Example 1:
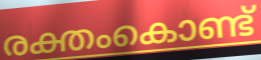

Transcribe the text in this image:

രക്തംകൊണ്ട്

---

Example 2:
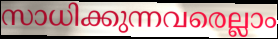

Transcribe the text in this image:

സാധിക്കുന്നവരെല്ലാം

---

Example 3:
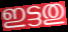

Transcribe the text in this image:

ഇട്ടതു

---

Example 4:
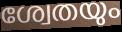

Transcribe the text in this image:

ശ്വേതയും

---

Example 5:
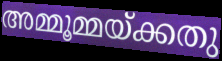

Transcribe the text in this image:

അമ്മൂമ്മയ്ക്കതു